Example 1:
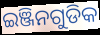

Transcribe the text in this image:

ଇଞ୍ଜିନଗୁଡିକ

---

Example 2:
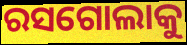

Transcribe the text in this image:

ରସଗୋଲାକୁ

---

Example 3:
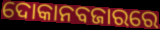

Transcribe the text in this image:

ଦୋକାନବଜାରରେ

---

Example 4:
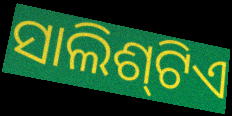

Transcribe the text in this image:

ସାଲିଶ୍‌ଟିଏ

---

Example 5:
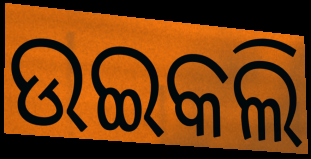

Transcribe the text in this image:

ଉଇକଲି